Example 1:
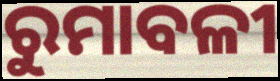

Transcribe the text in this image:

ରୁମାବଳୀ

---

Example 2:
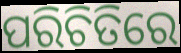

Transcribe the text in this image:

ପରିଚିତିରେ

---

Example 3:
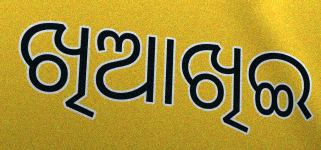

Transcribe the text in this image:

ଖିଆଖିଇ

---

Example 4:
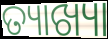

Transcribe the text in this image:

ତ୍ୟାଖ୍ୟା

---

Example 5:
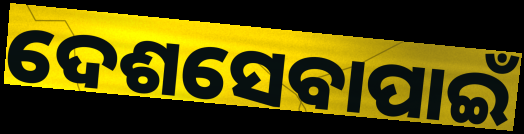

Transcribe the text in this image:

ଦେଶସେବାପାଇଁ